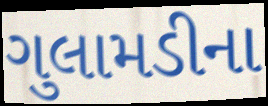
ગુલામડીના